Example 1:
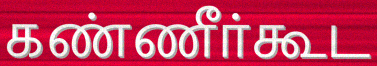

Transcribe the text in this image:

கண்ணீர்கூட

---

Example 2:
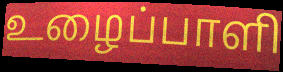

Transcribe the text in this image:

உழைப்பாளி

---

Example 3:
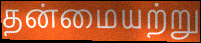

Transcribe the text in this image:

தன்மையற்று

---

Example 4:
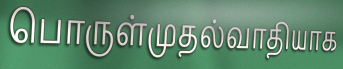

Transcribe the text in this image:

பொருள்முதல்வாதியாக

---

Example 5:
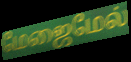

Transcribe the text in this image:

மேஜைமேல்